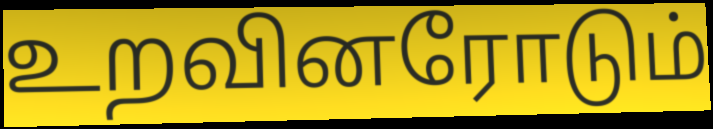
உறவினரோடும்